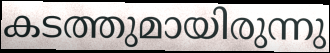
കടത്തുമായിരുന്നു